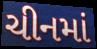
ચીનમાં